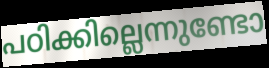
പഠിക്കില്ലെന്നുണ്ടോ